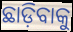
ଛାଡ଼ିବାକୁ